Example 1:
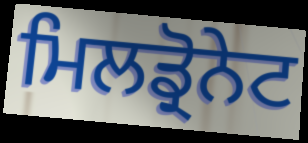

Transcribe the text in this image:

ਮਿਲਡ੍ਰੋਨੇਟ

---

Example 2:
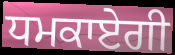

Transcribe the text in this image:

ਧਮਕਾਏਗੀ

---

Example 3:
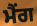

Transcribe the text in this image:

ਮੈਂਗ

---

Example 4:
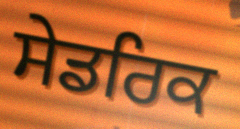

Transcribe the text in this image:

ਸੇਡਰਿਕ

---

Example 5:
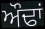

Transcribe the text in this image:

ਔਢਾਂ